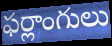
ఫర్లాంగులు